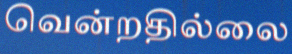
வென்றதில்லை